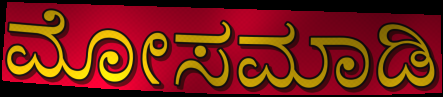
ಮೋಸಮಾಡಿ